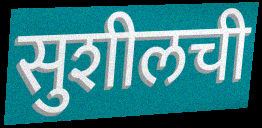
सुशीलची